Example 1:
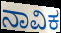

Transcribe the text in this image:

ನಾವಿಕ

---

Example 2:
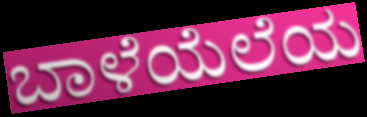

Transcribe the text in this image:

ಬಾಳೆಯೆಲೆಯ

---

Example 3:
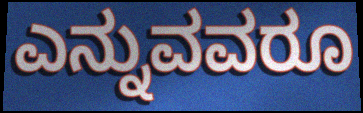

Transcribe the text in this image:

ಎನ್ನುವವರೂ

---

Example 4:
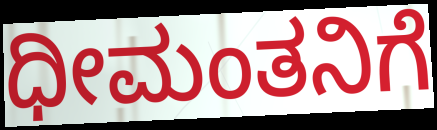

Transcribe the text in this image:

ಧೀಮಂತನಿಗೆ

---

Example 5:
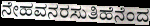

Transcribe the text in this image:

ನೇಹವನರಸುತಿಹೆನೆಂದ